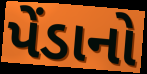
પેંડાનો